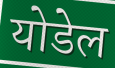
योडेल